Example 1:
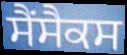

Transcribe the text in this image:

ਸੈਂਸੈਕਸ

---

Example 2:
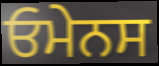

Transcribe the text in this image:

ਓਮੇਨਸ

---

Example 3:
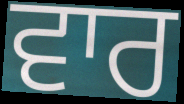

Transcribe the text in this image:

ਵਾਰ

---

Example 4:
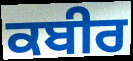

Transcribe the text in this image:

ਕਬੀਰ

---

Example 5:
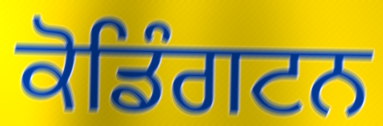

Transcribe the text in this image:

ਕੋਡਿੰਗਟਨ